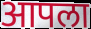
आपला